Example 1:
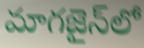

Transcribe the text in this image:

మాగజైన్‌లో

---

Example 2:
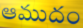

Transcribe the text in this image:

ఆముదం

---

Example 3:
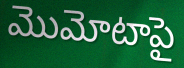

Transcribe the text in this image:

మొమోటాపై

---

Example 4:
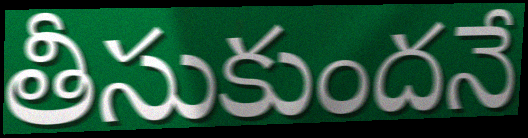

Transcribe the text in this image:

తీసుకుందనే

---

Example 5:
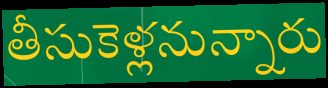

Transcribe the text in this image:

తీసుకెళ్లనున్నారు